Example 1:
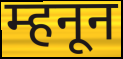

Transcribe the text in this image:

म्हनून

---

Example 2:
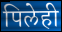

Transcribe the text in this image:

पिलेही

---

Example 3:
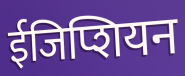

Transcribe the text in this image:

ईजिप्शियन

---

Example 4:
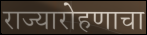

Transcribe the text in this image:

राज्यारोहणाचा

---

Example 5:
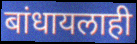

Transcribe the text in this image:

बांधायलाही